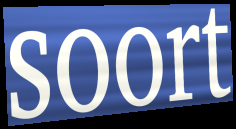
soort